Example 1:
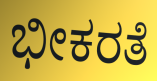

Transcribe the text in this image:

ಭೀಕರತೆ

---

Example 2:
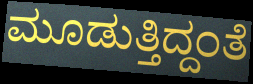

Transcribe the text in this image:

ಮೂಡುತ್ತಿದ್ದಂತೆ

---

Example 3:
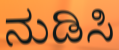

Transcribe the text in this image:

ನುಡಿಸಿ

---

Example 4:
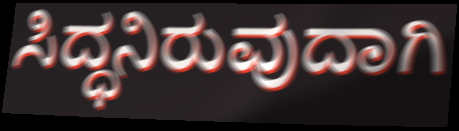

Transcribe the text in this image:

ಸಿದ್ಧನಿರುವುದಾಗಿ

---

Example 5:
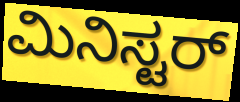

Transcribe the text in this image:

ಮಿನಿಸ್ಟರ್